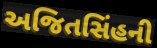
અજિતસિંહની